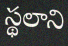
స్థలాని